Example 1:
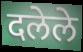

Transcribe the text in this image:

दलेले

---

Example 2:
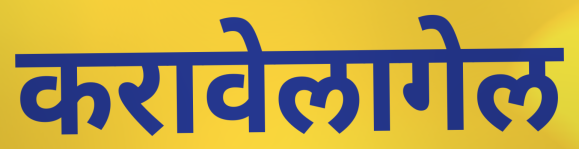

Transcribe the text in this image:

करावेलागेल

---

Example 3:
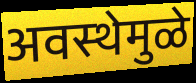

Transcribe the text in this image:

अवस्थेमुळे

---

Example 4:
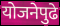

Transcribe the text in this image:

योजनेपुढे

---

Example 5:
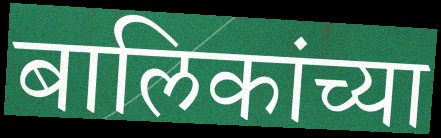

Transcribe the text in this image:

बालिकांच्या